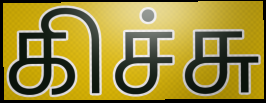
கிச்சு